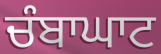
ਚੰਬਾਘਾਟ